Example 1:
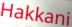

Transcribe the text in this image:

Hakkani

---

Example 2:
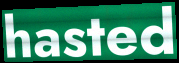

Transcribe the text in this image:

hasted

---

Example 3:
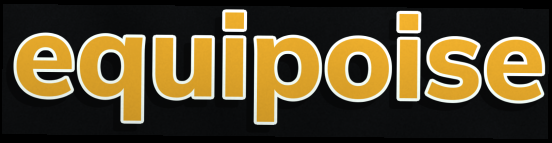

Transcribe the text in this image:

equipoise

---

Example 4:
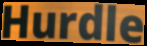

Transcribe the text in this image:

Hurdle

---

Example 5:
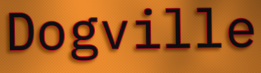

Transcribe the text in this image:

Dogville